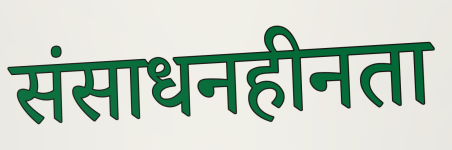
संसाधनहीनता